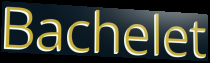
Bachelet